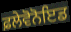
ਫ਼ਲੇਵੋਨੋਇਡ